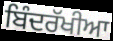
ਬਿੰਦਰੱਖੀਆ